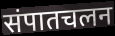
संपातचलन